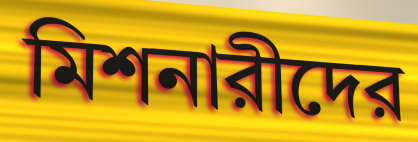
মিশনারীদের